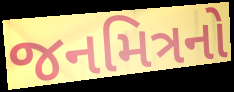
જનમિત્રનો